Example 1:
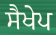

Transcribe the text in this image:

ਸੈਖੇਪ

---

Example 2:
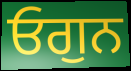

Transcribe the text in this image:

ਓਗੁਨ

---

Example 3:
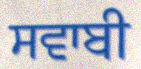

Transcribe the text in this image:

ਸਵਾਬੀ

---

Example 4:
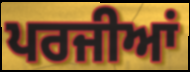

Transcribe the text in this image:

ਪਰਜੀਆਂ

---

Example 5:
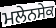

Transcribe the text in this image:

ਮਲੇਨਸੇਕ